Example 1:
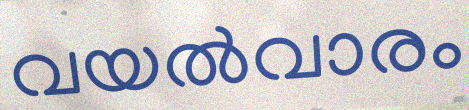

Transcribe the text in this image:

വയൽവാരം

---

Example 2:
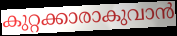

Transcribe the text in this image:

കുറ്റക്കാരാകുവാൻ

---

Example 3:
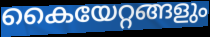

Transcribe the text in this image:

കൈയേറ്റങ്ങളും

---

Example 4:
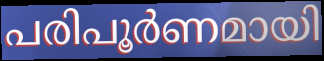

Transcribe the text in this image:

പരിപൂർണമായി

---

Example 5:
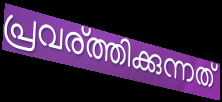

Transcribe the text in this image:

പ്രവര്ത്തിക്കുന്നത്